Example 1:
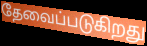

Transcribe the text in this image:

தேவைப்படுகிறது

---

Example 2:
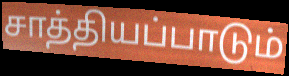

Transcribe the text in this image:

சாத்தியப்பாடும்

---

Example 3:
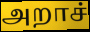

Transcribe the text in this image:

அறாச்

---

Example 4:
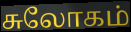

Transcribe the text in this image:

சுலோகம்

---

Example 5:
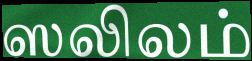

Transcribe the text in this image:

ஸலிலம்